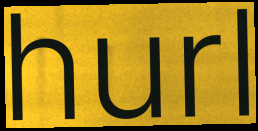
hurl